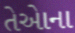
તેએાના